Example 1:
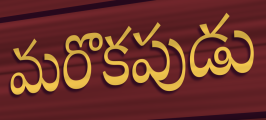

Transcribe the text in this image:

మరొకపుడు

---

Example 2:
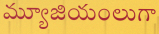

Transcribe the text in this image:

మ్యూజియంలుగా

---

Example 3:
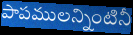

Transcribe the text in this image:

పాపములన్నింటినీ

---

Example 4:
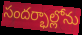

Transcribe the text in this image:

సందర్భాల్లోను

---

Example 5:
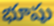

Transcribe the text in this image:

భూషు